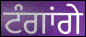
ਟੰਗਾਂਗੇ